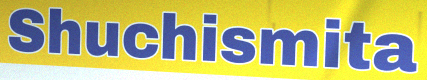
Shuchismita